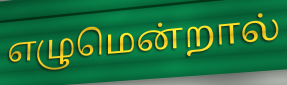
எழுமென்றால்